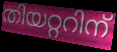
തിയറ്ററിന്